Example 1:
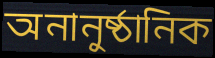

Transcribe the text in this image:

অনানুষ্ঠানিক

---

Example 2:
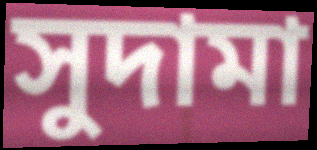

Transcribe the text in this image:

সুদামা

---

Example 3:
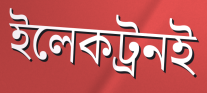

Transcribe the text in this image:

ইলেকট্রনই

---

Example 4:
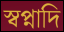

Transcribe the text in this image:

স্বপ্নাদি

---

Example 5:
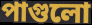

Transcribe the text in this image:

পাগুলো